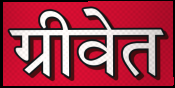
ग्रीवेत